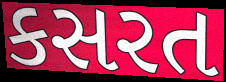
કસરત